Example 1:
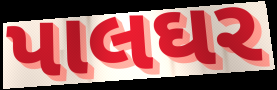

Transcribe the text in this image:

પાલઘર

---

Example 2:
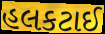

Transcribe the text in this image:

હલકટાઈ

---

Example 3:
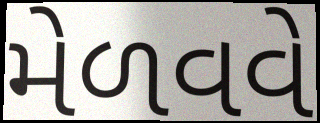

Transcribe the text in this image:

મેળવવે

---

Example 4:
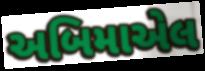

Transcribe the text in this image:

અબિમાએલ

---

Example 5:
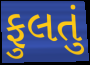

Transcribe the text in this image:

ફુલતું